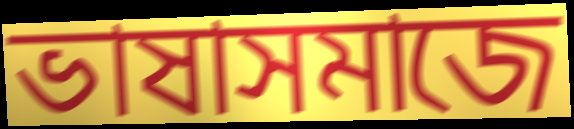
ভাষাসমাজে